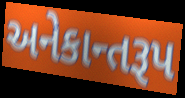
અનેકાન્તરૂપ